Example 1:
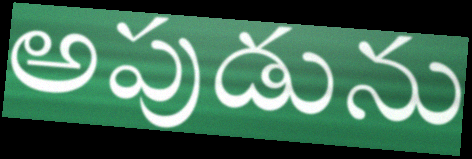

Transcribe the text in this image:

అపుడును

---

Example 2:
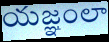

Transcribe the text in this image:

యజ్ఞంలా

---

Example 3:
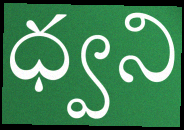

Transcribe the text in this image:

ధ్వని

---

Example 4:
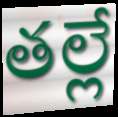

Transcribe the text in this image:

తల్లే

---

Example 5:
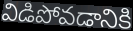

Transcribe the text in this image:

విడిపోవడానికి